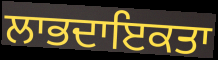
ਲਾਭਦਾਇਕਤਾ